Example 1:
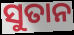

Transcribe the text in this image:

ସୁତାନ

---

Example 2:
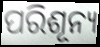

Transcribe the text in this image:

ପରିଶୂନ୍ୟ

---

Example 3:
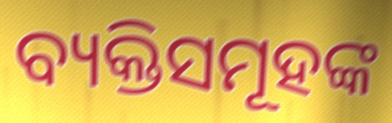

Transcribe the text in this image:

ବ୍ୟକ୍ତିସମୂହଙ୍କ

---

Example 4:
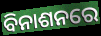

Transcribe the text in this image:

ବିନାଶନରେ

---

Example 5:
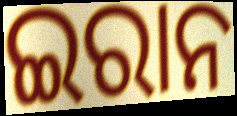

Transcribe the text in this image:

ଇରାନ